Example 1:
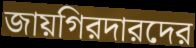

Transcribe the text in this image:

জায়গিরদারদের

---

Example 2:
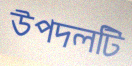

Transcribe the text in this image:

উপদলটি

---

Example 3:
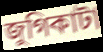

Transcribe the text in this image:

জুগিকাটা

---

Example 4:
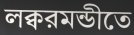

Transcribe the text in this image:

লক্বরমন্ডীতে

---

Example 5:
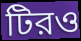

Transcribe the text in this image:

টিরও